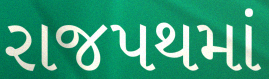
રાજપથમાં